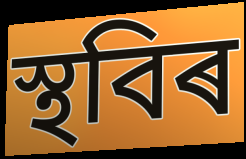
স্থবিৰ